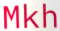
Mkh